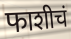
फाशीचं